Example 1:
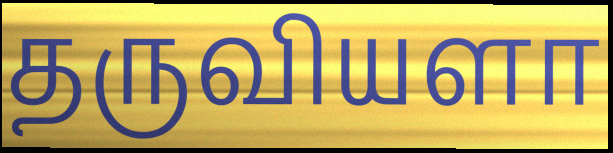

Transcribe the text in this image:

தருவியளா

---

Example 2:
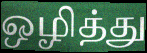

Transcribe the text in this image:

ஒழித்து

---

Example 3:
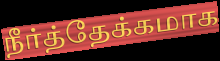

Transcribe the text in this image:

நீர்த்தேக்கமாக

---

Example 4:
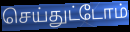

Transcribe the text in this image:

செய்துட்டோம்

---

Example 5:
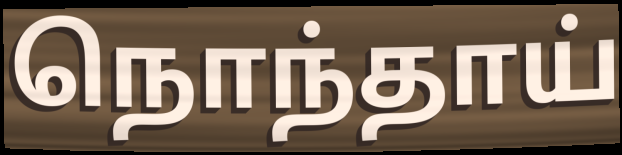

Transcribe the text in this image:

நொந்தாய்